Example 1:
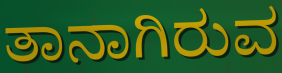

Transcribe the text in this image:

ತಾನಾಗಿರುವ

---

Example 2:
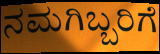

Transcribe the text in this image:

ನಮಗಿಬ್ಬರಿಗೆ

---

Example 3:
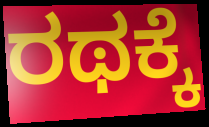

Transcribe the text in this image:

ರಥಕ್ಕೆ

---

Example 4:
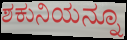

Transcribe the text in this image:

ಶಕುನಿಯನ್ನೂ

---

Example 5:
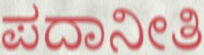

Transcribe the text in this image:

ಪದಾನೀತಿ